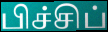
பிச்சிப்